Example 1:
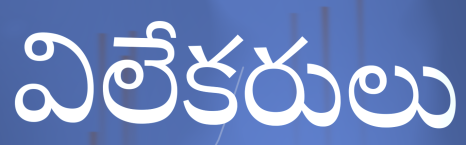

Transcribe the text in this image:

విలేకరులు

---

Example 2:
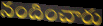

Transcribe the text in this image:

నందించారు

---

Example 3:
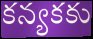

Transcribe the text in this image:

కన్యకకు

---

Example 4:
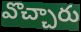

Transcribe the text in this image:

వొచ్చారు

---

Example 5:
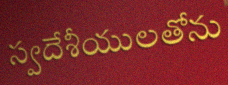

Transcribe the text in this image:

స్వదేశీయులతోను